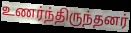
உணர்ந்திருந்தனர்